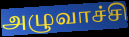
அழுவாச்சி